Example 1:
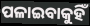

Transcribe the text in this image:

ପଳାଇବାକୁହିଁ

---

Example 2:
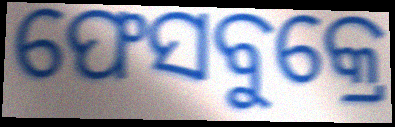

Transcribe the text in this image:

ଫେସବୁକ୍ରେ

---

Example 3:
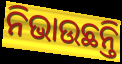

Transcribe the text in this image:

ନିଭାଉଛନ୍ତି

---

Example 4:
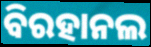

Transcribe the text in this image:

ବିରହାନଲ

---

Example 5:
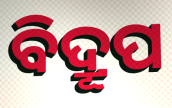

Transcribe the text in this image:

ବିଦ୍ରୂପ